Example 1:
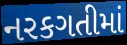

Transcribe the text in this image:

નરકગતીમાં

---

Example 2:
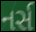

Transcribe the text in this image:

નર્સ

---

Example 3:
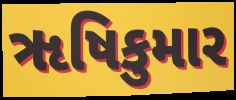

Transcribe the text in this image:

ૠષિકુમાર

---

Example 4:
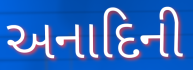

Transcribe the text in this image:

અનાદિની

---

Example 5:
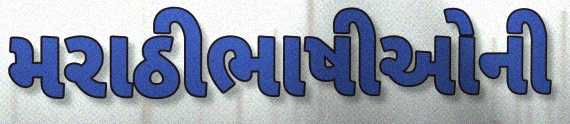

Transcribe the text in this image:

મરાઠીભાષીઓની